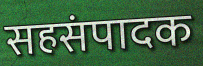
सहसंपादक